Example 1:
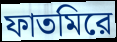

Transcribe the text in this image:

ফাতমিরে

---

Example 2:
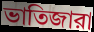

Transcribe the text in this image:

ভাতিজারা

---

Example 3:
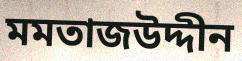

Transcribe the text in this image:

মমতাজউদ্দীন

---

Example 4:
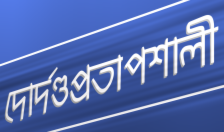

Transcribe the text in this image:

দোর্দণ্ডপ্রতাপশালী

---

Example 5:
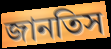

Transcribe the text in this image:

জানতিস